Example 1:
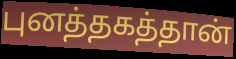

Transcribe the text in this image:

புனத்தகத்தான்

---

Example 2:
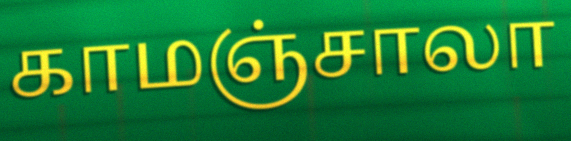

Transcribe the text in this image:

காமஞ்சாலா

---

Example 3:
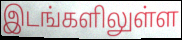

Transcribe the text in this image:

இடங்களிலுள்ள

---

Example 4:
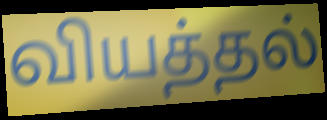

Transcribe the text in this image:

வியத்தல்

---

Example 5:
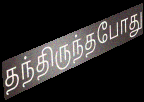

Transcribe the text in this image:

தந்திருந்தபோது